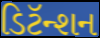
ડિટૅન્શન